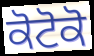
ਕੋਟੋਕੋ